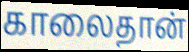
காலைதான்